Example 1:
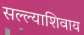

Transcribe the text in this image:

सल्ल्याशिवाय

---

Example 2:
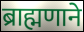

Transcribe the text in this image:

ब्राह्मणाने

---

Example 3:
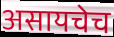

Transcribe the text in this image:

असायचेच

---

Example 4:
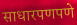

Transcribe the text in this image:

साधारपणपणे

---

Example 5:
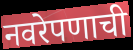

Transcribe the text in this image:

नवरेपणाची